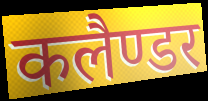
कलैण्डर